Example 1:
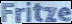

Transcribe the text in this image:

Fritze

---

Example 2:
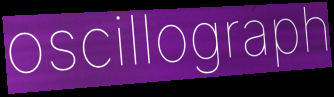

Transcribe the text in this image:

oscillograph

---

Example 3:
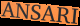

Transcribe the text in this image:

ANSARI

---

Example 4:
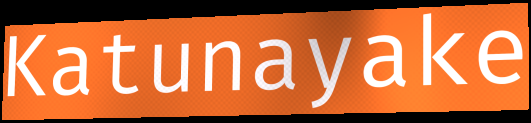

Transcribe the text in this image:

Katunayake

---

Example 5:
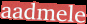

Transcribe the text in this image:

aadmele